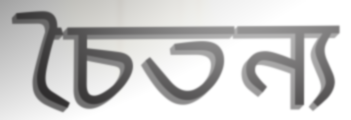
চৈতন্য